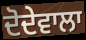
ਦੋਦੇਵਾਲਾ